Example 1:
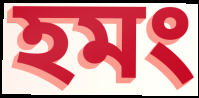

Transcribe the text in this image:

হমং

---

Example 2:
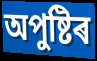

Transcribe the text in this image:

অপুষ্টিৰ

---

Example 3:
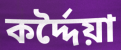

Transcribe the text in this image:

কৰ্দ্দৈয়া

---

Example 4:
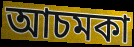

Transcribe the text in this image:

আচমকা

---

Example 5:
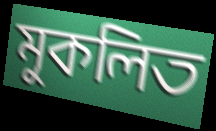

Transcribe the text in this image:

মুকলিত